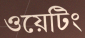
ওয়েটিং